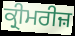
ਕ੍ਰੀਮਰੀਜ਼